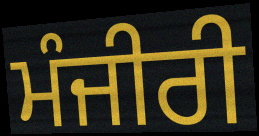
ਮੰਜੀਰੀ